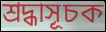
শ্রদ্ধাসূচক